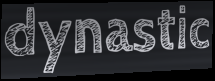
dynastic